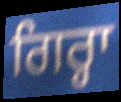
ਗਿਰ੍ਹਾ